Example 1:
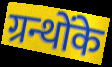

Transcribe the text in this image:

ग्रन्थोंके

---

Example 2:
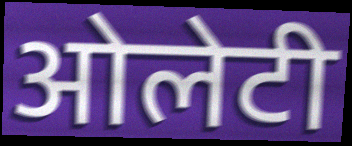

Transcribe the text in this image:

ओलेटी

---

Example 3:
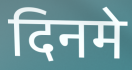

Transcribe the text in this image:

दिनमे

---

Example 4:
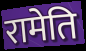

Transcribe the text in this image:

रामेति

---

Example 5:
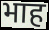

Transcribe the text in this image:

भाह